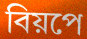
বিয়পে